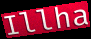
Illha